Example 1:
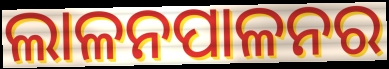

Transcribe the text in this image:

ଲାଳନପାଳନର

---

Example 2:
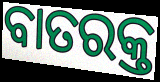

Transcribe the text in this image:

ବାତରକ୍ତ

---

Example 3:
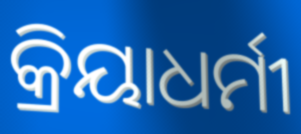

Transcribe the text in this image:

କ୍ରିୟାଧର୍ମୀ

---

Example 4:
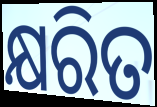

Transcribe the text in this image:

କ୍ଷରିତ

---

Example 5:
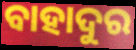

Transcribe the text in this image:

ବାହାଦୁର